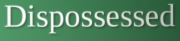
Dispossessed